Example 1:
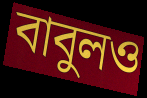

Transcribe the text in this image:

বাবুলও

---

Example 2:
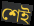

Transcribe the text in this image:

শেই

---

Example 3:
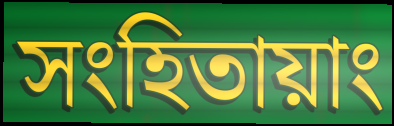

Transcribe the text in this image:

সংহিতায়াং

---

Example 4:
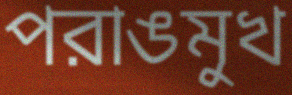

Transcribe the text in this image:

পরাঙমুখ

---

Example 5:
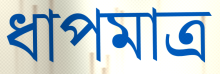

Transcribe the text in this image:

ধাপমাত্র